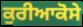
ਕੁਰੀਆਕੋਸੇ